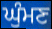
ਘੁੰਮਣ